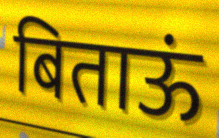
बिताऊं